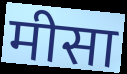
मीसा